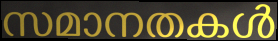
സമാനതകൾ